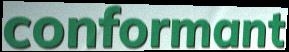
conformant